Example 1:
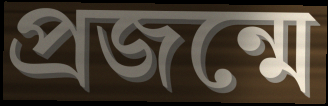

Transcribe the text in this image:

প্রজন্মে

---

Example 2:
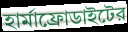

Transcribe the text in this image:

হার্মাফ্রোডাইটের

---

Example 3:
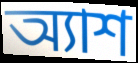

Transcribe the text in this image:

অ্যাশ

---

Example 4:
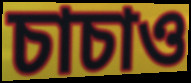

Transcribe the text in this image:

চাচাও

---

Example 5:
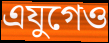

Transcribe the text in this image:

এযুগেও